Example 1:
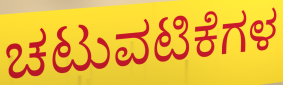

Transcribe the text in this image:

ಚಟುವಟಿಕೆಗಳ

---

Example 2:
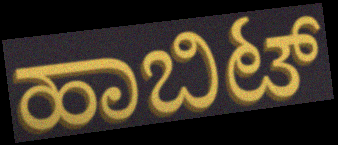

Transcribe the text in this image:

ಹಾಬಿಟ್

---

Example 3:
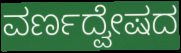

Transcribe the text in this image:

ವರ್ಣದ್ವೇಷದ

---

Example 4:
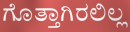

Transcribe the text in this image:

ಗೊತ್ತಾಗಿರಲಿಲ್ಲ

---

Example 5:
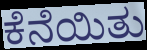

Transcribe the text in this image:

ಕೆನೆಯಿತು